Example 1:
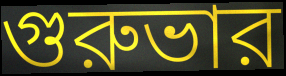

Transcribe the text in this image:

গুরুভার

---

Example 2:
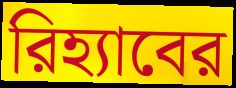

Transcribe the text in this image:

রিহ্যাবের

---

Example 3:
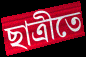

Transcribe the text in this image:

ছাত্রীতে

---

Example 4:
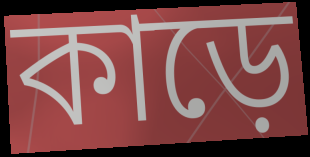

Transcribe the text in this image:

কাড়ে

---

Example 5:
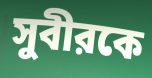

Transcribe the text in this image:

সুবীরকে